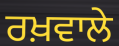
ਰਖ਼ਵਾਲੇ